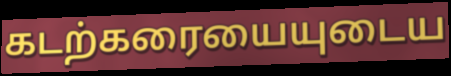
கடற்கரையையுடைய